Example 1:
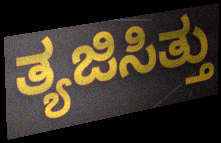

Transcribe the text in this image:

ತ್ಯಜಿಸಿತ್ತು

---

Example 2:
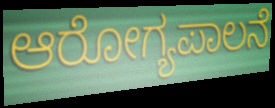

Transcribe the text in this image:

ಆರೋಗ್ಯಪಾಲನೆ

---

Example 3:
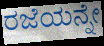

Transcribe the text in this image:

ರಜೆಯನ್ನೇ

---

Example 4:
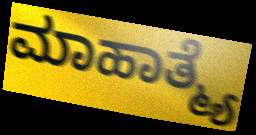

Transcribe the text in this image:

ಮಾಹಾತ್ಮ್ಯೆ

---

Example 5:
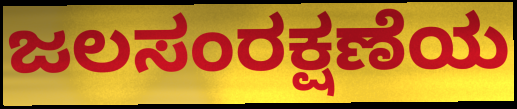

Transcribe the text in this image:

ಜಲಸಂರಕ್ಷಣೆಯ